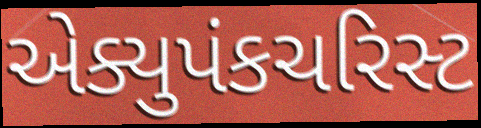
એક્યુપંકચરિસ્ટ